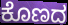
ಕೊಣದ